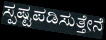
ಸ್ಪಷ್ಟಪಡಿಸುತ್ತೇನೆ